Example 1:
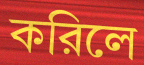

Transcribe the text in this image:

করিলে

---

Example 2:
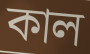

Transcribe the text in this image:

কাল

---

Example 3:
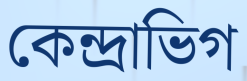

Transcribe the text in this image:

কেন্দ্রাভিগ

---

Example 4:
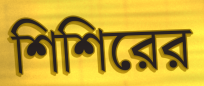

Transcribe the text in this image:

শিশিরের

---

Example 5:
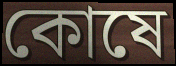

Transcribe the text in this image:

কোষে